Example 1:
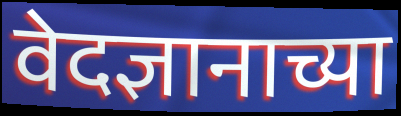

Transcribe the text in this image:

वेदज्ञानाच्या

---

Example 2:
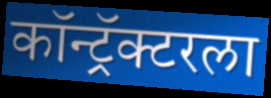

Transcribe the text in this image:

कॉन्ट्रॅक्टरला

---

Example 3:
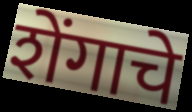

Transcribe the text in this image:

शेंगाचे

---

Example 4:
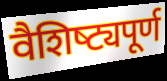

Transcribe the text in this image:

वैशिष्‍ट्यपूर्ण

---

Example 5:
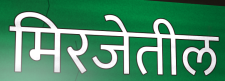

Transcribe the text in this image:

मिरजेतील